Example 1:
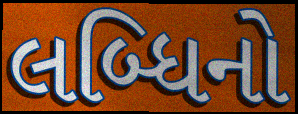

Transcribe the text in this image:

લબ્ધિનો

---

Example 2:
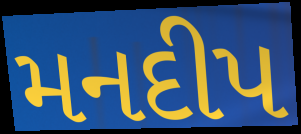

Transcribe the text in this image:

મનદીપ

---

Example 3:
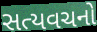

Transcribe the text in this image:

સત્યવચનો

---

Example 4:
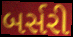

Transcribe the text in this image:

બર્સરી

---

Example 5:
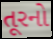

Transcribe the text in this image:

તૂરનો